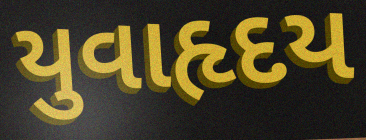
યુવાહૃદય